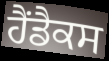
ਹੈਂਡੈਕਸ